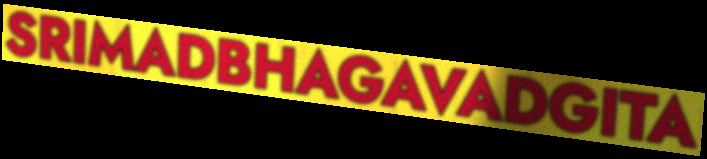
SRIMADBHAGAVADGITA